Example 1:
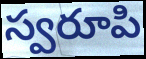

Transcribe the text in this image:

స్వరూపి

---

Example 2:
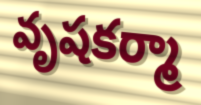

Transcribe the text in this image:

వృషకర్మా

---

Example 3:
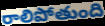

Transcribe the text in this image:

రాలిపోతుంది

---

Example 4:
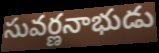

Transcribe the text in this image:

సువర్ణనాభుడు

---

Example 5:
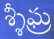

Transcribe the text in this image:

శ్శీఘ్ర